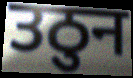
उठुन